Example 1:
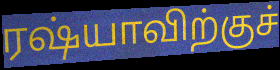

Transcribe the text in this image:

ரஷ்யாவிற்குச்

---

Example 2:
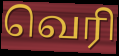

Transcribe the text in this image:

வெரி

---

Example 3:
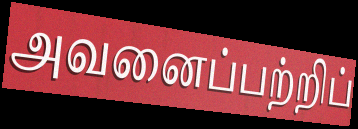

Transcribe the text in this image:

அவனைப்பற்றிப்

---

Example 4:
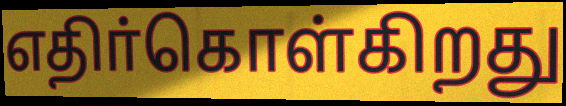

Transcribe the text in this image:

எதிர்கொள்கிறது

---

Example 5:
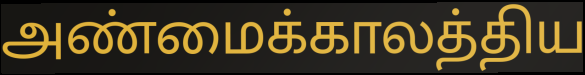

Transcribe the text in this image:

அண்மைக்காலத்திய